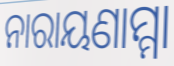
ନାରାୟଣାମ୍ମା